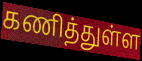
கணித்துள்ள